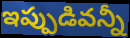
ఇప్పుడివన్నీ